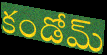
కండోమ్